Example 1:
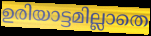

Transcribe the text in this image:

ഉരിയാട്ടമില്ലാതെ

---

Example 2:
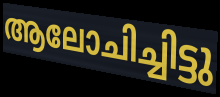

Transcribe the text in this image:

ആലോചിച്ചിട്ടു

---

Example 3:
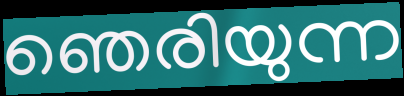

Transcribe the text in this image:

ഞെരിയുന്ന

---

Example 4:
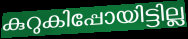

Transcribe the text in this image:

കുറുകിപ്പോയിട്ടില്ല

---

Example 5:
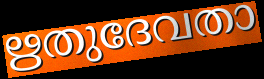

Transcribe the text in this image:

ഋതുദേവതാ